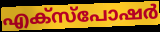
എക്സ്പോഷർ